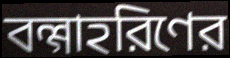
বল্গাহরিণের